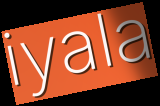
iyala